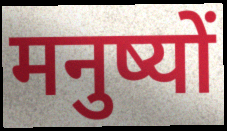
मनुष्यों